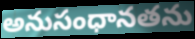
అనుసంధానతను